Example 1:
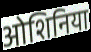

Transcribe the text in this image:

ओशिनिया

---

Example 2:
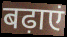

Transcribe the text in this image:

बढ़ाएं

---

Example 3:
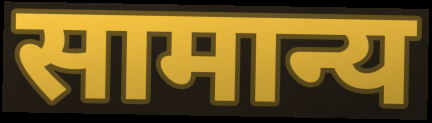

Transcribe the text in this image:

सामान्य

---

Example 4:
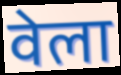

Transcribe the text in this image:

वेला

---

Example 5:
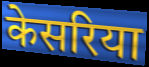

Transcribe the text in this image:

केसरिया